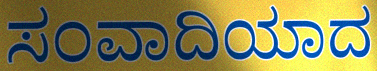
ಸಂವಾದಿಯಾದ